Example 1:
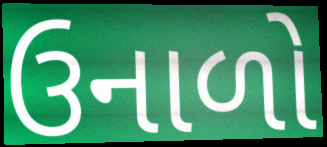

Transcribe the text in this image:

ઉનાળો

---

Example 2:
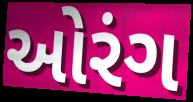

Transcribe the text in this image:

ઓરંગ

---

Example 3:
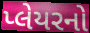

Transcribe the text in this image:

પ્લેયરનો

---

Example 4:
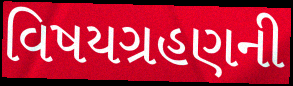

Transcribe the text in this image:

વિષયગ્રહણની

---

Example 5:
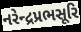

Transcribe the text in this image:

નરેન્દ્રપ્રભસૂરિ